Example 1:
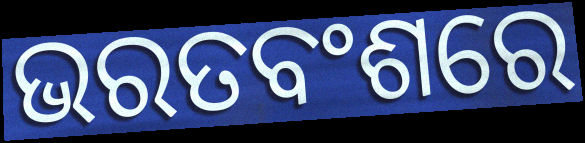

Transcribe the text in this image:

ଭରତବଂଶରେ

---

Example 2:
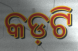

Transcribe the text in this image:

କଡ଼ଟି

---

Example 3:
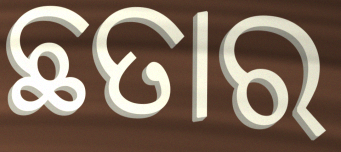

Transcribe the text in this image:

ଛତାର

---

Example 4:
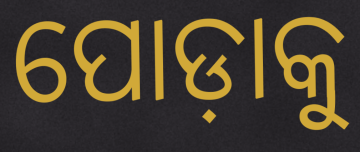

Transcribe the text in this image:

ପୋଡ଼ାକୁ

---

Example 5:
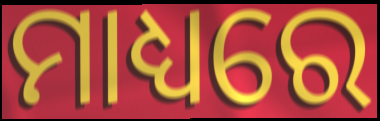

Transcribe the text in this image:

ମାଧ୍ୟରେ